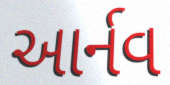
આર્નવ